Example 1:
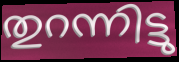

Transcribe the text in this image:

തുറന്നിട്ടു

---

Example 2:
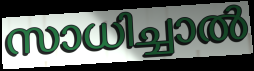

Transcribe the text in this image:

സാധിച്ചാൽ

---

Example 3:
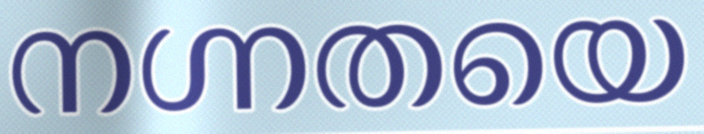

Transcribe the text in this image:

നഗ്നതയെ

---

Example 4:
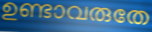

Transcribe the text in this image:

ഉണ്ടാവരുതേ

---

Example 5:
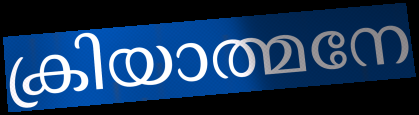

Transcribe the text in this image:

ക്രിയാത്മനേ